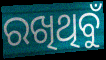
ରଖିଥିବୁଁ